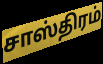
சாஸ்திரம்